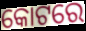
କୋଟରେ